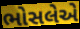
ભોસલેએ